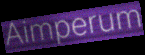
Aimperum